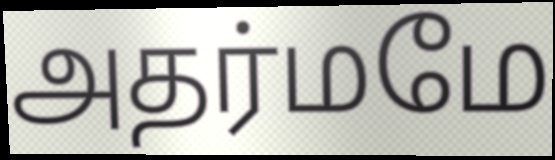
அதர்மமே